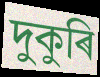
দুকুৰি